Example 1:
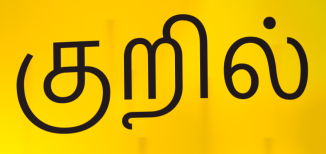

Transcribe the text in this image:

குறில்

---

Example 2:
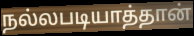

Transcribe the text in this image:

நல்லபடியாத்தான்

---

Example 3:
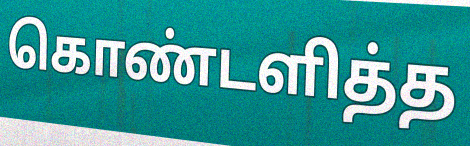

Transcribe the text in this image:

கொண்டளித்த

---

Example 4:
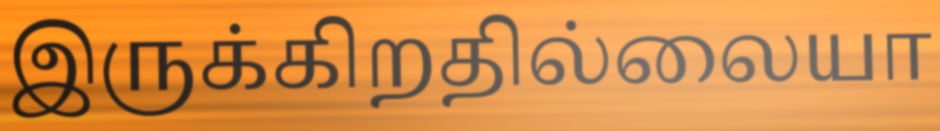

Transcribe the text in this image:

இருக்கிறதில்லையா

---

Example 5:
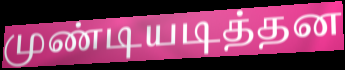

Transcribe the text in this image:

முண்டியடித்தன